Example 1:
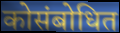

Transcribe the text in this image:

कोसंबोधित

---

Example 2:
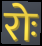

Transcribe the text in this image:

रोः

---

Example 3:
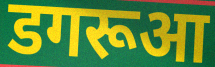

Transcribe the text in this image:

डगरूआ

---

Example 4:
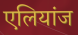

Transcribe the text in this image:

एलियांज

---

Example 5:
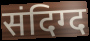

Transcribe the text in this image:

संदिग्द